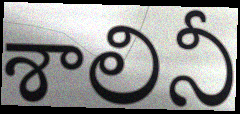
శాలినీ